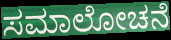
ಸಮಾಲೋಚನೆ